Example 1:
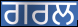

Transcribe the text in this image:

ਗਰਲ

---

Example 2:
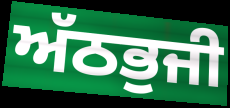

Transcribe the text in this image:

ਅੱਠਭੁਜੀ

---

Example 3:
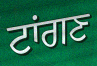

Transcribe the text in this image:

ਟਾਂਗਣ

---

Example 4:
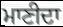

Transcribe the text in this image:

ਮਾਣੀਦਾ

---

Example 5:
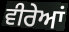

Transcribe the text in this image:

ਵੀਰੇਆਂ